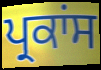
ਪ੍ਰਕਾਂਸ